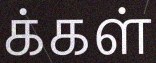
க்கள்